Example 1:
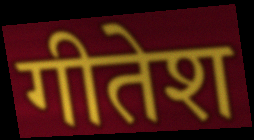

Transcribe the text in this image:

गीतेश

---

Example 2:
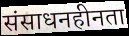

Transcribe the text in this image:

संसाधनहीनता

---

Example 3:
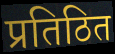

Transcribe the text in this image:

प्रतिठित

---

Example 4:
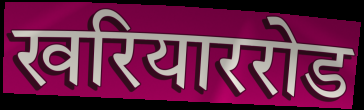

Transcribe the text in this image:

खरियाररोड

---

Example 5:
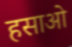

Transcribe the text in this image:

हसाओ